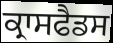
ਕ੍ਰਾਸਫੈਡਸ